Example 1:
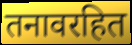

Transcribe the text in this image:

तनावरहित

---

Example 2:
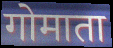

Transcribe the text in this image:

गोमाता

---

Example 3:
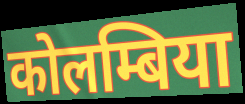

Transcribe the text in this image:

कोलम्बिया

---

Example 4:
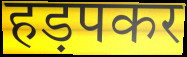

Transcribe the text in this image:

हड़पकर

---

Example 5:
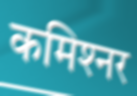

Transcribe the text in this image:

कमिश्‍नर